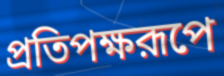
প্রতিপক্ষরূপে